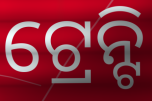
ଟ୍ରେନ୍ଟି